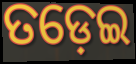
ତଡ଼େଇ